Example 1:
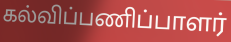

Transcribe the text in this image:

கல்விப்பணிப்பாளர்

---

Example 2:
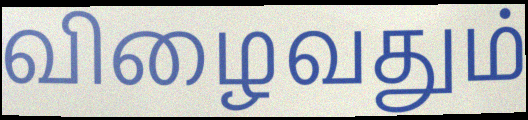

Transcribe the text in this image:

விழைவதும்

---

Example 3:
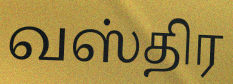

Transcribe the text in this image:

வஸ்திர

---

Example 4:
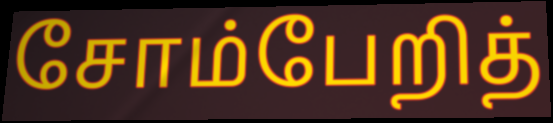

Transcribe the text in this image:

சோம்பேறித்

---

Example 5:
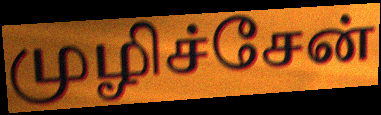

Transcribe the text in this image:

முழிச்சேன்